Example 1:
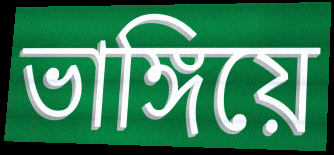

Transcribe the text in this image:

ভাঙ্গিয়ে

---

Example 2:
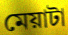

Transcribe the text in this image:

মেয়াটা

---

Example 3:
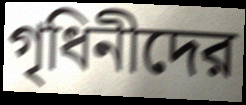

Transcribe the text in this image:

গৃধিনীদের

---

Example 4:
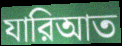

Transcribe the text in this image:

যারিআত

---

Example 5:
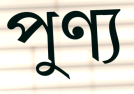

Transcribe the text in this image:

পুণ্য